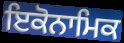
ਇਕੋਨਾਮਿਕ